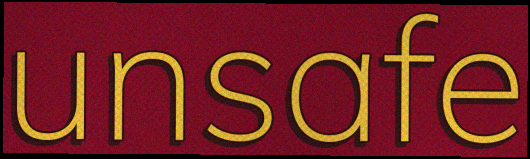
unsafe